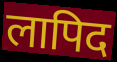
लापिद